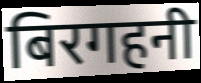
बिरगहनी